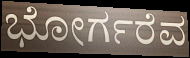
ಭೋರ್ಗರೆವ